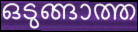
ഒടുങ്ങാത്ത